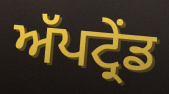
ਅੱਪਟ੍ਰੇਂਡ